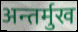
अन्तर्मुख